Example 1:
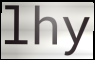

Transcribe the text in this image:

lhy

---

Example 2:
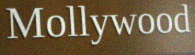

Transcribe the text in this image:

Mollywood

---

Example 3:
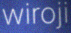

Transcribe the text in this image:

wiroji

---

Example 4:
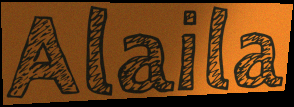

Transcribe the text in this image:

Alaila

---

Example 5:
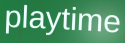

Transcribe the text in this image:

playtime